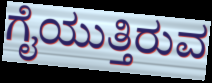
ಗೈಯುತ್ತಿರುವ